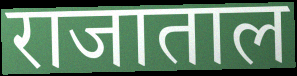
राजाताल